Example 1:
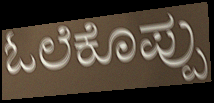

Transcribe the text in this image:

ಓಲೆಕೊಪ್ಪು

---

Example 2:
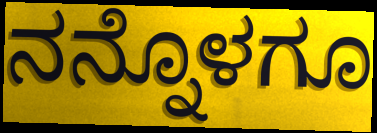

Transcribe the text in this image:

ನನ್ನೊಳಗೂ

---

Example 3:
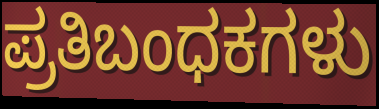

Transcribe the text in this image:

ಪ್ರತಿಬಂಧಕಗಳು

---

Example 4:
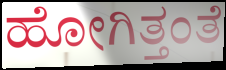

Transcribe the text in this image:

ಹೋಗಿತ್ತಂತೆ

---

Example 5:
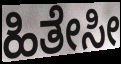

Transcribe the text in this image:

ಹಿತೇಸೀ